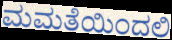
ಮಮತೆಯಿಂದಲಿ